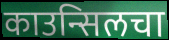
काउन्सिलचा